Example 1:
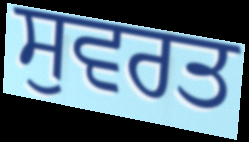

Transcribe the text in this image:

ਸੁਵਰਤ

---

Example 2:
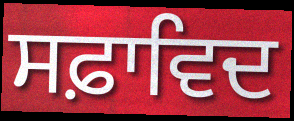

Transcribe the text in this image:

ਸਫ਼ਾਵਿਦ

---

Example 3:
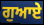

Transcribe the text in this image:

ਗੁਆਏ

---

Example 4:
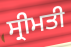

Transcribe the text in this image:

ਸ੍ਰੀਮਤੀ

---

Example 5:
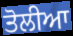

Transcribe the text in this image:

ਤੋਲੀਆ